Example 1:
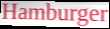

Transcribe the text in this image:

Hamburger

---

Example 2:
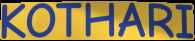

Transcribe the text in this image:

KOTHARI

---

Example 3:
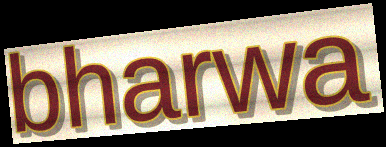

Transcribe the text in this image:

bharwa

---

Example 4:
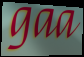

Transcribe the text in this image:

gaa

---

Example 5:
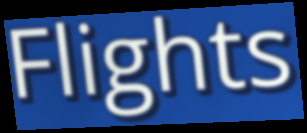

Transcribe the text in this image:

Flights